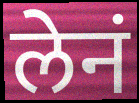
लेनं